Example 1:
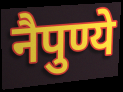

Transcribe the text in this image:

नैपुण्ये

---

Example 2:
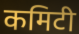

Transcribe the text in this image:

कमिटी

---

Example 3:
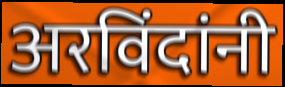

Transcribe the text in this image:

अरविंदांनी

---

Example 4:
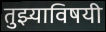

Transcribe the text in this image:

तुझ्याविषयी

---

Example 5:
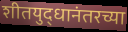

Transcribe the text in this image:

शीतयुद्धानंतरच्या